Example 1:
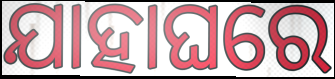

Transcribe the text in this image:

ଯାହାଘରେ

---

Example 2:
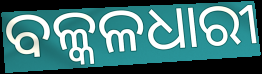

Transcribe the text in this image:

ବଳ୍କଳଧାରୀ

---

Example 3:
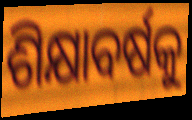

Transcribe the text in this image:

ଶିକ୍ଷାବର୍ଷକୁ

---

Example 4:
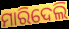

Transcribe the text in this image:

ମାରିଦେଲି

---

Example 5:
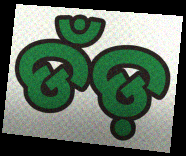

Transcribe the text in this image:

ଡଁଡ଼